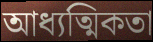
আধ্যত্মিকতা